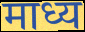
माध्‍य